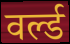
वर्ल्ड